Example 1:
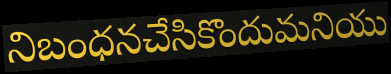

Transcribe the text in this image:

నిబంధనచేసికొందుమనియు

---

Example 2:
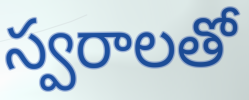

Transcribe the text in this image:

స్వరాలతో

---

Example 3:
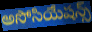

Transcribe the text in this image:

అసోసియేషన్స్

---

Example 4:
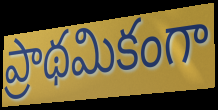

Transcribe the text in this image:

ప్రాథమికంగా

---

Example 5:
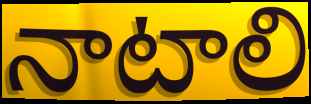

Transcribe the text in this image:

నాటాలి